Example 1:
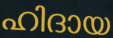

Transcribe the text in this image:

ഹിദായ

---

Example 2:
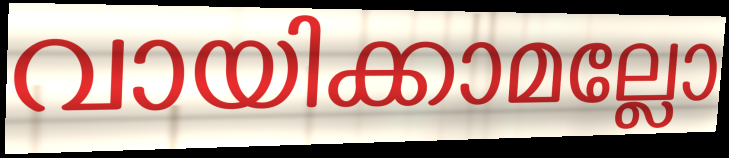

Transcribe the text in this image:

വായിക്കാമല്ലോ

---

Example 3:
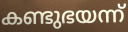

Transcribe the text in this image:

കണ്ടുഭയന്ന്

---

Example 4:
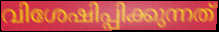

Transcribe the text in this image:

വിശേഷിപ്പിക്കുന്നത്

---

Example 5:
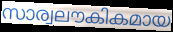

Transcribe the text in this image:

സാര്വലൗകികമായ